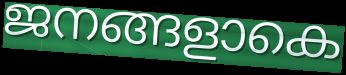
ജനങ്ങളാകെ